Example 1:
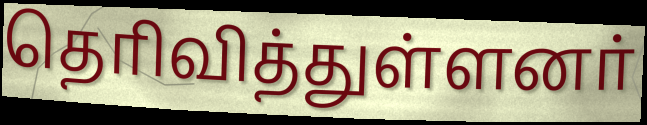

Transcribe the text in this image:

தெரிவித்துள்ளனர்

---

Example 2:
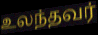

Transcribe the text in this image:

உலந்தவர்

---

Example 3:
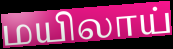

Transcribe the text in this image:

மயிலாய்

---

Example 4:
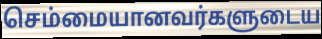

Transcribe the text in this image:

செம்மையானவர்களுடைய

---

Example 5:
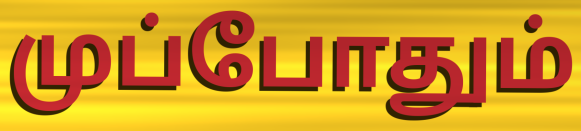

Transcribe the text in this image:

முப்போதும்